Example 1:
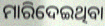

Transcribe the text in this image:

ମାରିଦେଇଥିବା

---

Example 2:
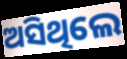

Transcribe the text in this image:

ଅସିଥିଲେ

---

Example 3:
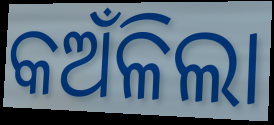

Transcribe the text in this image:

କଅଁଳିଲା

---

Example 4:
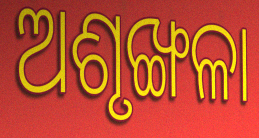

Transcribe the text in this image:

ଅଶୃଙ୍ଖଳା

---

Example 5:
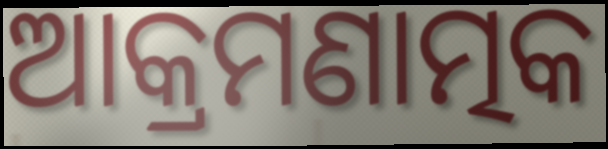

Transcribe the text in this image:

ଆକ୍ରମଣାତ୍ମକ